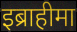
इब्राहीमा